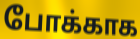
போக்காக